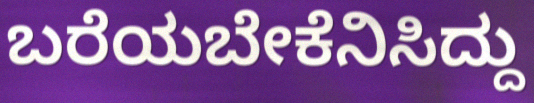
ಬರೆಯಬೇಕೆನಿಸಿದ್ದು